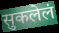
सुकलेलं